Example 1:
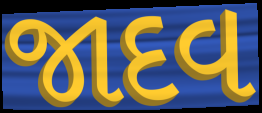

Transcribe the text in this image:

જાદવ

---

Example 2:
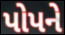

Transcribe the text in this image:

પોપને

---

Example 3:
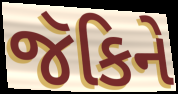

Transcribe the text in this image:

જૅકિને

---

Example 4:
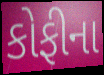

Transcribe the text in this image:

કોફીના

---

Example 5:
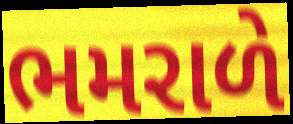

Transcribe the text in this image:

ભમરાળે